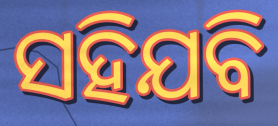
ସହିଯବି